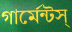
গার্মেন্টস্